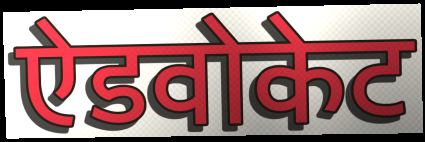
ऐडवोकेट